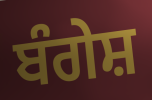
ਬੰਗੇਸ਼